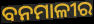
ବନମାଳୀର